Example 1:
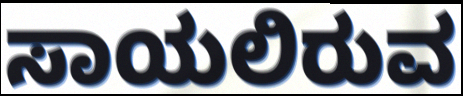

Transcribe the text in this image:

ಸಾಯಲಿರುವ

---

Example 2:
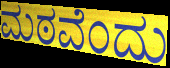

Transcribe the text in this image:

ಮಠವೆಂದು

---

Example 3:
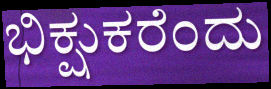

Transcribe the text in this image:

ಭಿಕ್ಷುಕರೆಂದು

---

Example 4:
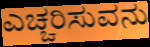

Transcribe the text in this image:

ಎಚ್ಚರಿಸುವನು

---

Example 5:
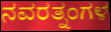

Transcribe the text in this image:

ನವರತ್ನಂಗಳ